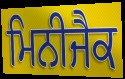
ਮਿਨੀਜੈਕ